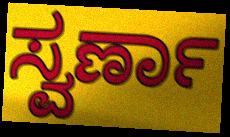
ಸ್ವರ್ಣಾ